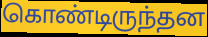
கொண்டிருந்தன